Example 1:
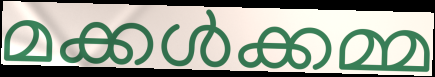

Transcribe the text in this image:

മക്കൾക്കമ്മ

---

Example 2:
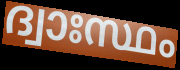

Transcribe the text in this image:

ദ്വാഃസ്ഥം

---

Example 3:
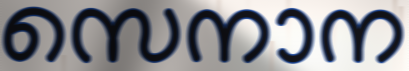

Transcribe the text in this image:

സെനാന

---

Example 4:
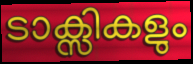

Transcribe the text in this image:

ടാക്സികളും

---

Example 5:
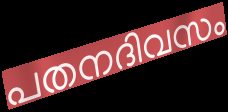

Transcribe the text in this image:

പതനദിവസം